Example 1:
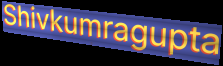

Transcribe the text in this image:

Shivkumragupta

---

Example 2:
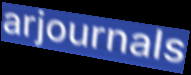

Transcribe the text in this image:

arjournals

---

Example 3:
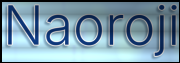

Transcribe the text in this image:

Naoroji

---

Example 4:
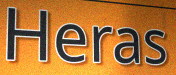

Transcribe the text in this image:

Heras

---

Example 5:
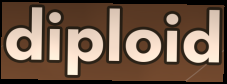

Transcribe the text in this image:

diploid